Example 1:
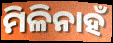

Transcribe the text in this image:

ମିଳିନାହଁ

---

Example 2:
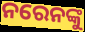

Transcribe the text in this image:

ନରେନଙ୍କୁ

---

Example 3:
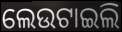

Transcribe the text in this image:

ଲେଉଟାଇଲି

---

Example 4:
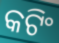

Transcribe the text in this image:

କଟିଂ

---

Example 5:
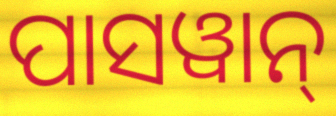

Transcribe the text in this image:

ପାସୱାନ୍